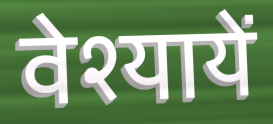
वेश्यायें